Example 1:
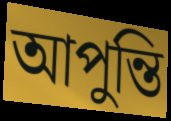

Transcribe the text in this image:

আপুন্তি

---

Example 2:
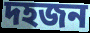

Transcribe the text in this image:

দহজন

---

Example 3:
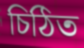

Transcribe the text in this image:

চিঠিত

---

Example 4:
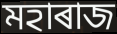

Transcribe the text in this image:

মহাৰাজ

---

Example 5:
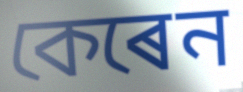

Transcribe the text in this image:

কেৰেন